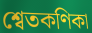
শ্বেতকণিকা